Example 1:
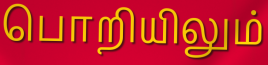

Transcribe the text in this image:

பொறியிலும்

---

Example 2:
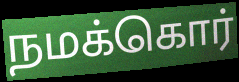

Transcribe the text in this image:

நமக்கொர்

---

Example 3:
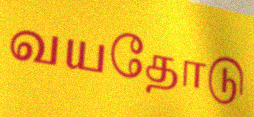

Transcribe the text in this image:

வயதோடு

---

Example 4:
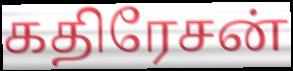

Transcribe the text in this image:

கதிரேசன்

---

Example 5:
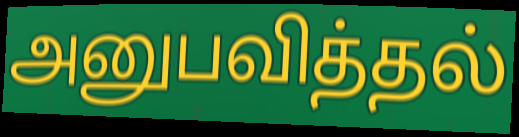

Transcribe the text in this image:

அனுபவித்தல்